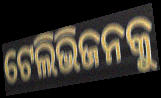
ଟେଲିଭିଜନକୁ